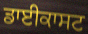
ਡਾਈਕਾਸਟ